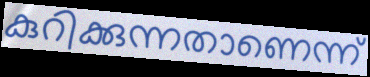
കുറിക്കുന്നതാണെന്ന്